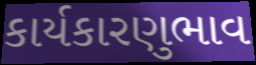
કાર્યકારણુભાવ